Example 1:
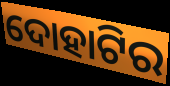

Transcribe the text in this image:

ଦୋହାଟିର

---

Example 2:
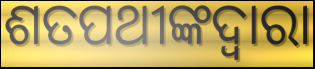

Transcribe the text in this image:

ଶତପଥୀଙ୍କଦ୍ୱାରା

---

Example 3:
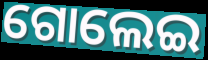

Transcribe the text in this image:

ଗୋଲେଇ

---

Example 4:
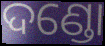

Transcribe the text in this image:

ଦଣ୍ଡୋ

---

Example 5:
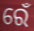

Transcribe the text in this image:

ରେଁ